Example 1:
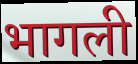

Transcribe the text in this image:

भागली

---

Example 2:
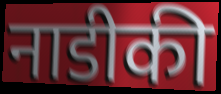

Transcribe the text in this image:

नाडीकी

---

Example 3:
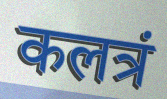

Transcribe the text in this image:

कलत्रं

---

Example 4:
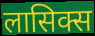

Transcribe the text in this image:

लासिक्स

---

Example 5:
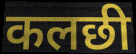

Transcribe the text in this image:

कलछी